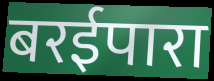
बरईपारा